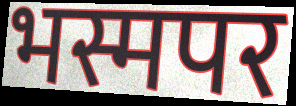
भस्मपर